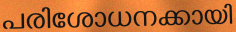
പരിശോധനക്കായി